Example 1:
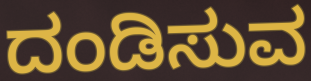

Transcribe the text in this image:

ದಂಡಿಸುವ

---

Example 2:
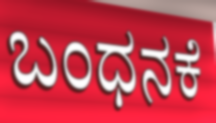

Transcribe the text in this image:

ಬಂಧನಕೆ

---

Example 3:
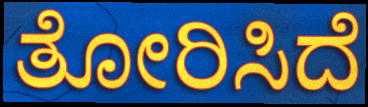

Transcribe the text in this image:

ತೋರಿಸಿದೆ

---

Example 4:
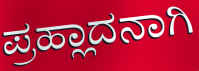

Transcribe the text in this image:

ಪ್ರಹ್ಲಾದನಾಗಿ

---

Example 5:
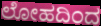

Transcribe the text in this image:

ಲೋಹದಿಂದ